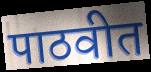
पाठवीत